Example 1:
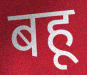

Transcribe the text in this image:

बहू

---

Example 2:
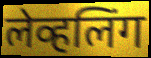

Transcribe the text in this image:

लेव्हलिंग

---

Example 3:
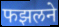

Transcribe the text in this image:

फझलने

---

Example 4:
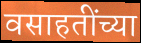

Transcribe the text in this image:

वसाहतींच्या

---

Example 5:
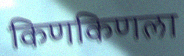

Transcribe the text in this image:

किणकिणला